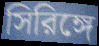
সিরিঙ্গে